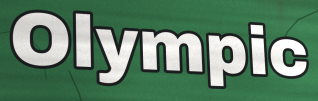
Olympic